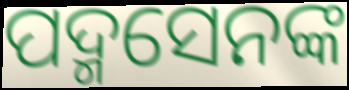
ପଦ୍ମସେନଙ୍କ